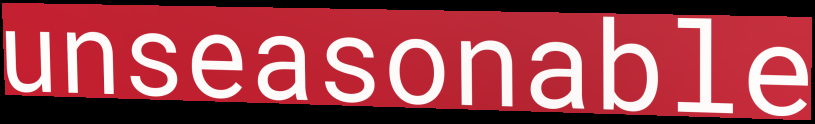
unseasonable